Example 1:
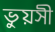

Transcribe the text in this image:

ভুয়সী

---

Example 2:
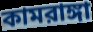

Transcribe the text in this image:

কামরাঙ্গা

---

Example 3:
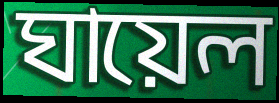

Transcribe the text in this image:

ঘায়েল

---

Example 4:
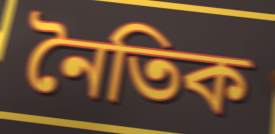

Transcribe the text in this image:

নৈতিক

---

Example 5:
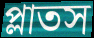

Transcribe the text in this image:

প্লাতস